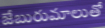
జేబురుమాలుతో